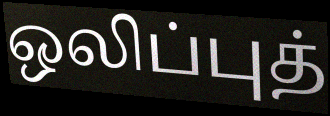
ஒலிப்புத்